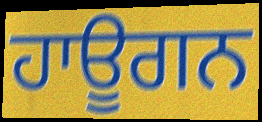
ਹਾਊਗਨ